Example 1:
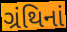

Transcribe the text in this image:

ગ્રંથિનાં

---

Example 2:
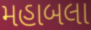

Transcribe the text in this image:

મહાબલા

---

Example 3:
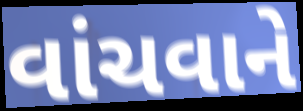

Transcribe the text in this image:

વાંચવાને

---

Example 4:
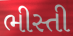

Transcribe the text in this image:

ભીસ્તી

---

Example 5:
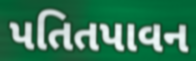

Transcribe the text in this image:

પતિતપાવન